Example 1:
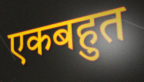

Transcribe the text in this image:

एकबहुत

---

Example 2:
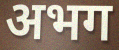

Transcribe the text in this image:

अभग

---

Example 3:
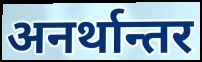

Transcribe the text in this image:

अनर्थान्तर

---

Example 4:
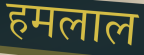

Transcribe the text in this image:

हमलाल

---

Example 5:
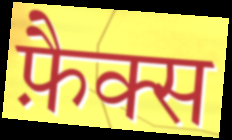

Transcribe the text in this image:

फ़ैक्स